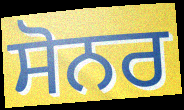
ਸੋਨਰ